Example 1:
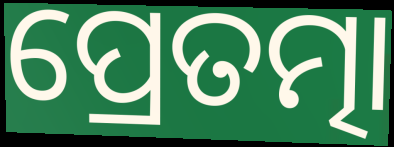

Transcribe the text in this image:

ପ୍ରେତତ୍ମା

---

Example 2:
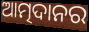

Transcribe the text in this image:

ଆତ୍ମଦାନର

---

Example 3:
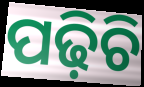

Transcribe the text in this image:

ପଢ଼ିଚି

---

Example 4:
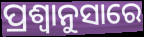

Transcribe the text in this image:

ପ୍ରଶ୍ବାନୁସାରେ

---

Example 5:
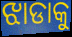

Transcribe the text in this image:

ଝାଡାକୁ